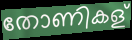
തോണികള്